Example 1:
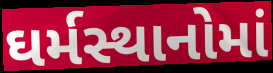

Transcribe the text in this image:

ઘર્મસ્થાનોમાં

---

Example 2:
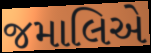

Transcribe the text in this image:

જમાલિએ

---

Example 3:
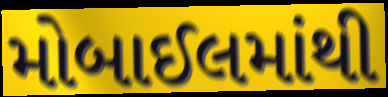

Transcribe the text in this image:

મોબાઈલમાંથી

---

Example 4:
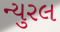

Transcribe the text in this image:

ન્યુરલ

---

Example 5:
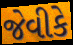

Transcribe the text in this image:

જેવીકે